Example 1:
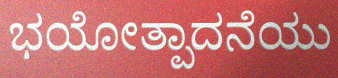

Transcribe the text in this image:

ಭಯೋತ್ಪಾದನೆಯು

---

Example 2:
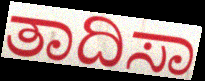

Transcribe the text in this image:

ತಾದಿಸಾ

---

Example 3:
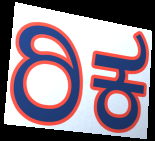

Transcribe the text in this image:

ರಿಕ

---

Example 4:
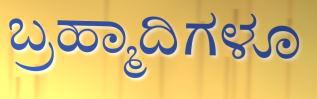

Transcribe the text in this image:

ಬ್ರಹ್ಮಾದಿಗಳೂ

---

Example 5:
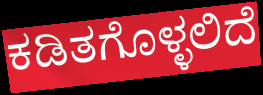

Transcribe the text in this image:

ಕಡಿತಗೊಳ್ಳಲಿದೆ